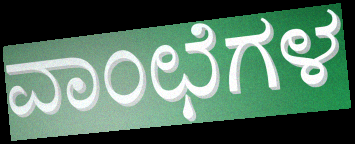
ವಾಂಛೆಗಳ